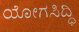
ಯೋಗಸಿದ್ಧಿ